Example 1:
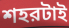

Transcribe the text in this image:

শহরটাই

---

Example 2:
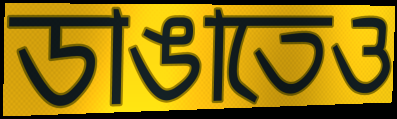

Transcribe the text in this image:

ডাঙাতেও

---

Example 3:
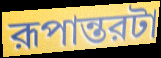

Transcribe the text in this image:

রূপান্তরটা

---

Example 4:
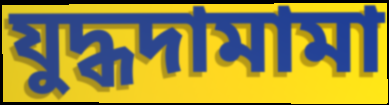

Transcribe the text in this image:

যুদ্ধদামামা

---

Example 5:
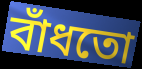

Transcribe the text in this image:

বাঁধতো